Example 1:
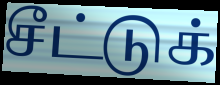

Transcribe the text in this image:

சீட்டுக்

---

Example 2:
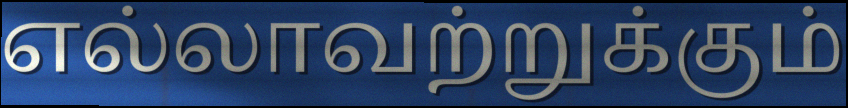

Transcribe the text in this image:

எல்லாவற்றுக்கும்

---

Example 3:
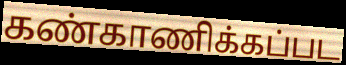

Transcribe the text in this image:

கண்காணிக்கப்பட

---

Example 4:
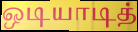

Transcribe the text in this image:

ஒடியாடித்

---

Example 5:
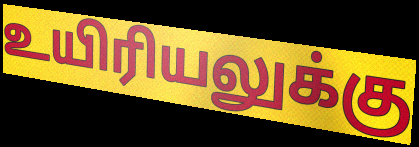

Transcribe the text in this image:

உயிரியலுக்கு